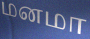
மனமா